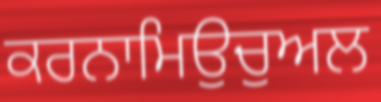
ਕਰਨਾਮਿਉਚੁਅਲ